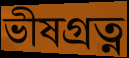
ভীষগ্ৰত্ন